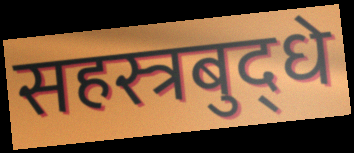
सहस्त्रबुद्धे